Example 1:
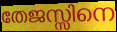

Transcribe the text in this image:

തേജസ്സിനെ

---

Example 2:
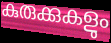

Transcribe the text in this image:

കുരുക്കുകളും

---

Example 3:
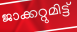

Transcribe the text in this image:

ജാക്കറ്റുമിട്ട്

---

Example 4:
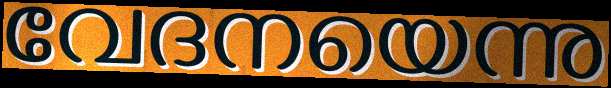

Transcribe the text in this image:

വേദനയെന്നു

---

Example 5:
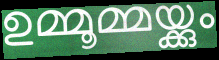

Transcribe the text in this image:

ഉമ്മൂമ്മയ്ക്കും